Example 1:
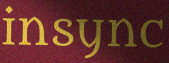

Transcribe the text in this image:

insync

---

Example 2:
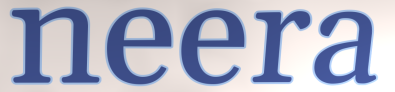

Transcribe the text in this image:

neera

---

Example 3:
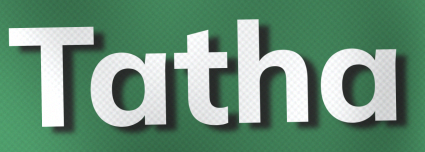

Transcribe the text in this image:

Tatha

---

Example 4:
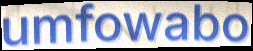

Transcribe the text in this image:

umfowabo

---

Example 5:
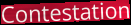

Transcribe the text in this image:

Contestation